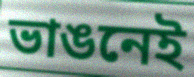
ভাঙনেই